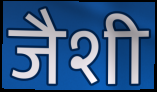
जैशी